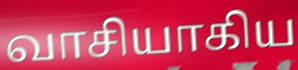
வாசியாகிய